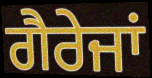
ਗੈਰੇਜਾਂ